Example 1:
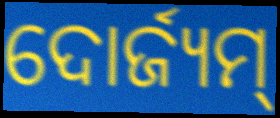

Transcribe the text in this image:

ଦୋର୍ଜ୍ୟମ୍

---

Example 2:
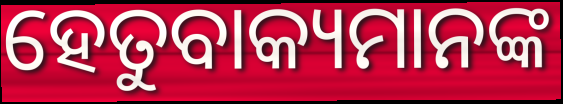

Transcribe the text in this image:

ହେତୁବାକ୍ୟମାନଙ୍କ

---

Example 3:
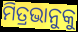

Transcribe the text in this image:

ମିତ୍ରଭାନୁକୁ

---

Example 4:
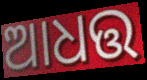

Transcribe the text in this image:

ଆଧତ୍ତ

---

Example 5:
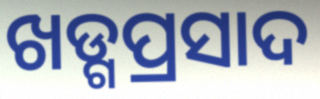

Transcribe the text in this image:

ଖଡ୍ଗପ୍ରସାଦ